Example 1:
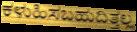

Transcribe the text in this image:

ಕಳುಹಿಸಬಹುದಿತ್ತಲ್ಲ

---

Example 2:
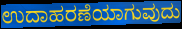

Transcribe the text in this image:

ಉದಾಹರಣೆಯಾಗುವುದು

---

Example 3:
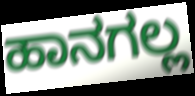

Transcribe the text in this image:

ಹಾನಗಲ್ಲ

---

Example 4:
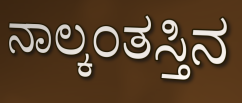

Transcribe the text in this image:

ನಾಲ್ಕಂತಸ್ತಿನ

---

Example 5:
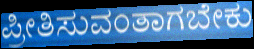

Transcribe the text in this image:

ಪ್ರೀತಿಸುವಂತಾಗಬೇಕು